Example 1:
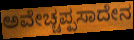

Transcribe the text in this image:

ಅವೇಚ್ಚಪ್ಪಸಾದೇನ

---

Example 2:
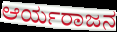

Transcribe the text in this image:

ಆರ್ಯರಾಜನ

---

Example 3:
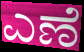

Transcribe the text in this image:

ಎಣೆ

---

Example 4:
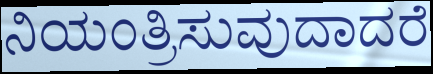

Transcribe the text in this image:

ನಿಯಂತ್ರಿಸುವುದಾದರೆ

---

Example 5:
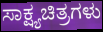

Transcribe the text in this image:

ಸಾಕ್ಷ್ಯಚಿತ್ರಗಳು